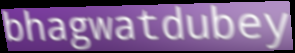
bhagwatdubey